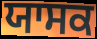
ਯਾਸਕ